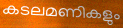
കടലമണികളും